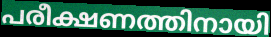
പരീക്ഷണത്തിനായി